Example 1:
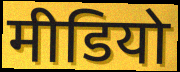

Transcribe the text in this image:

मीडियो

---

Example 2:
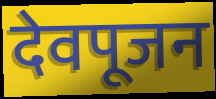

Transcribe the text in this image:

देवपूजन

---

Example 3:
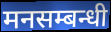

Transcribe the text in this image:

मनसम्बन्धी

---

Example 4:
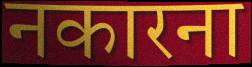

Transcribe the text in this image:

नकारना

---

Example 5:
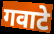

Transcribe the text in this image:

गवाटे